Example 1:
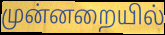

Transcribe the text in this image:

முன்னறையில்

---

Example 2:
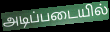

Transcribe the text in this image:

அடிப்படையில்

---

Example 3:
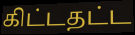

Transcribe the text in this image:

கிட்டதட்ட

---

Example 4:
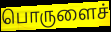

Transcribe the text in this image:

பொருளைச்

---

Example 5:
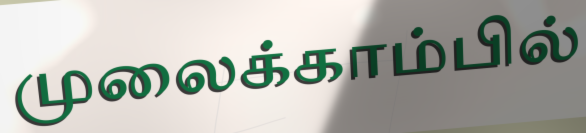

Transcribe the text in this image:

முலைக்காம்பில்